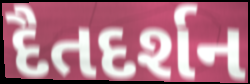
દૈતદર્શન